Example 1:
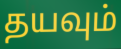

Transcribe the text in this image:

தயவும்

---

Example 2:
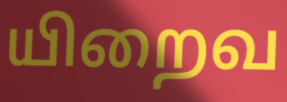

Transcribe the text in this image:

யிறைவ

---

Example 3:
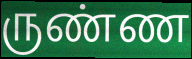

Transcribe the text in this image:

ருண்ண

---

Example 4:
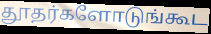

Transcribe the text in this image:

தூதர்களோடுங்கூட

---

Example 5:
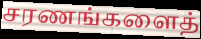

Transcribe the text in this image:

சரணங்களைத்